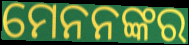
ମେନନଙ୍କର